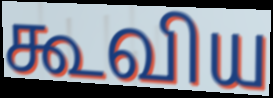
கூவிய